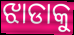
ଝାଡାକୁ